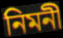
নিমনী